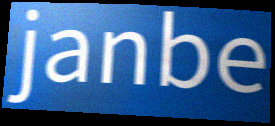
janbe